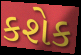
કશેક